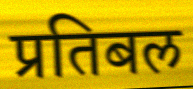
प्रतिबल